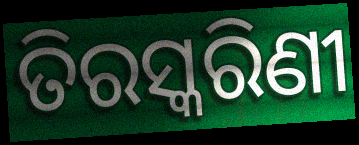
ତିରସ୍କରିଣୀ